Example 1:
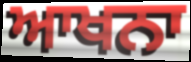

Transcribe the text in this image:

ਆਖਨਾ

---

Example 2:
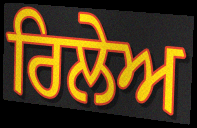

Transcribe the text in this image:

ਰਿਲੇਅ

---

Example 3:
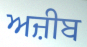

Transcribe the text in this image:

ਅਜ਼ੀਬ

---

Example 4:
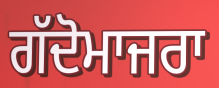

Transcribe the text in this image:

ਗੱਦੋਮਾਜਰਾ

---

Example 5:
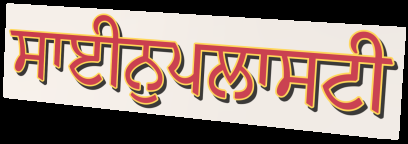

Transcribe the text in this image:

ਸਾਈਨੁਪਲਾਸਟੀ